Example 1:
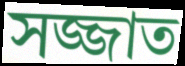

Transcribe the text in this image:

সজ্জাত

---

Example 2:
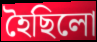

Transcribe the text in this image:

হৈছিলো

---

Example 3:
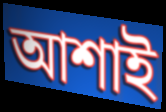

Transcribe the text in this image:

আশাই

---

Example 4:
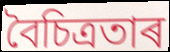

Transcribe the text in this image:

বৈচিত্ৰতাৰ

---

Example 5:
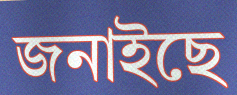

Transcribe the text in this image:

জনাইছে